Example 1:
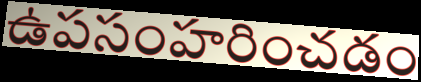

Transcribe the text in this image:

ఉపసంహరించడం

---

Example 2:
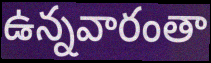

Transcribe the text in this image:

ఉన్నవారంతా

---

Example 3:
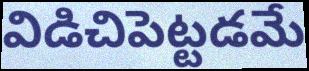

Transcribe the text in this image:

విడిచిపెట్టడమే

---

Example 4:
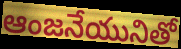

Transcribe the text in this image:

ఆంజనేయునితో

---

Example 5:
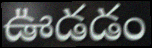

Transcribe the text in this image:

ఊడడం